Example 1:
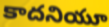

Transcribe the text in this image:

కాదనియూ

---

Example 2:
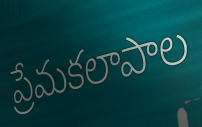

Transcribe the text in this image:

ప్రేమకలాపాల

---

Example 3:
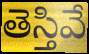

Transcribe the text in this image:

తెస్తివే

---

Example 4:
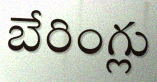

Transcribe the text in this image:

బేరింగ్లు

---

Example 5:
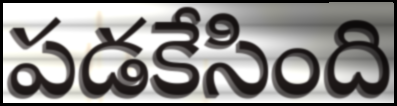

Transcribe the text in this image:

పడకేసింది